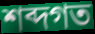
শব্দগত